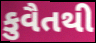
કુવૈતથી